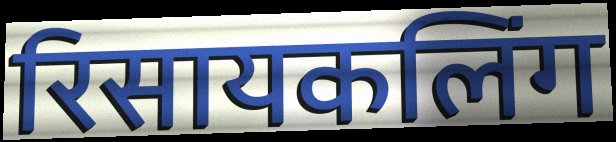
रिसायकलिंग